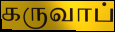
கருவாப்